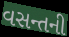
વસન્તની